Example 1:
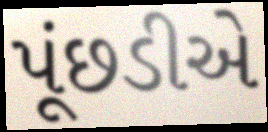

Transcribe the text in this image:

પૂંછડીએ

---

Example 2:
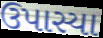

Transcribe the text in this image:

ઉપાસ્યા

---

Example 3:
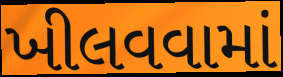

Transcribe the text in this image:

ખીલવવામાં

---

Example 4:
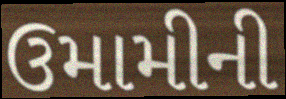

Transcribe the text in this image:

ઉમામીની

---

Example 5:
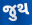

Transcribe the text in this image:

જુથ